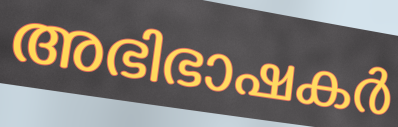
അഭിഭാഷകർ